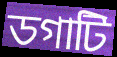
ডগাটি